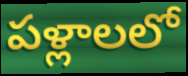
పళ్లాలలో